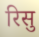
रिसु